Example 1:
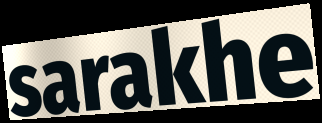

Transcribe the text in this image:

sarakhe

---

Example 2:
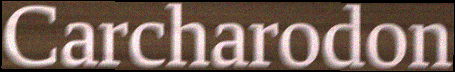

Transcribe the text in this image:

Carcharodon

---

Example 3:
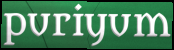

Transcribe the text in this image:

puriyum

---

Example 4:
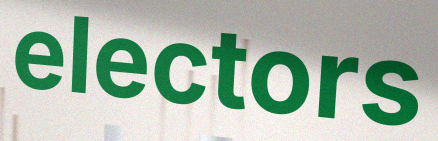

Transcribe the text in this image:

electors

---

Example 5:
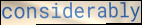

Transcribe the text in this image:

considerably